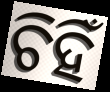
ଚିହିଁ